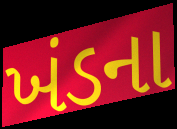
ખંડના